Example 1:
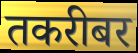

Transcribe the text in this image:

तकरीबर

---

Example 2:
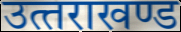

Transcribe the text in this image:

उत्‍तराखण्‍ड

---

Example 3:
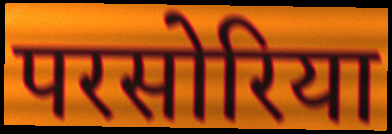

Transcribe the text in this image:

परसोरिया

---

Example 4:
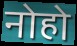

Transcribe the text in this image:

नोहो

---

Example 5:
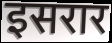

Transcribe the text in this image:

इसरार